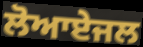
ਲੋਆਏਜਲ